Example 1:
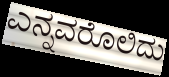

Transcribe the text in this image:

ಎನ್ನವರೊಲಿದು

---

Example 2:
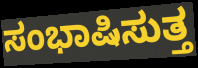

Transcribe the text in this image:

ಸಂಭಾಷಿಸುತ್ತ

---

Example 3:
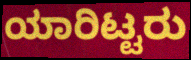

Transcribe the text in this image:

ಯಾರಿಟ್ಟರು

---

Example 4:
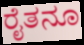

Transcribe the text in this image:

ರೈತನೂ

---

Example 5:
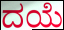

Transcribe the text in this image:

ದಯೆ